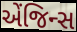
એંજિન્સ